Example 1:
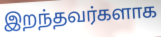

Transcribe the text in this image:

இறந்தவர்களாக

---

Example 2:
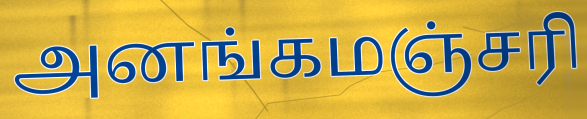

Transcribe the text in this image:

அனங்கமஞ்சரி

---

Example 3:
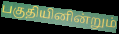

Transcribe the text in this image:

பகுதியினின்றும்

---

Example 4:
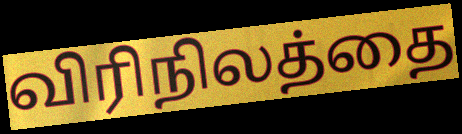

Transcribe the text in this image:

விரிநிலத்தை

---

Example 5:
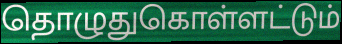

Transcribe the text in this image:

தொழுதுகொள்ளட்டும்